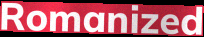
Romanized